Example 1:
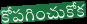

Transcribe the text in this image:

కోపగించుకోక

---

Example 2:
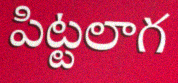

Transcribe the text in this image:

పిట్టలాగ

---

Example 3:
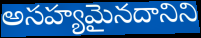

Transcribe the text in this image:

అసహ్యమైనదానిని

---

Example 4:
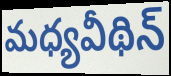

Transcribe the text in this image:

మధ్యవీథిన్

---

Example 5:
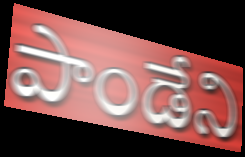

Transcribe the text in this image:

పాండేని